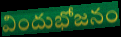
విందుభోజనం